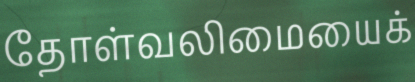
தோள்வலிமையைக்